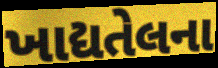
ખાદ્યતેલના